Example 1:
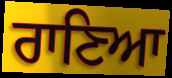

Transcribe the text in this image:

ਰਾਣਿਆ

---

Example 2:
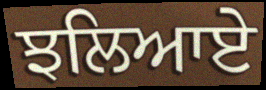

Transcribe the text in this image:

ਝਲਿਆਏ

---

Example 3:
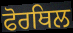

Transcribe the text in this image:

ਫੋਰਥਿਲ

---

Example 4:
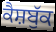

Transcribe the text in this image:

ਕੈਸ਼ਬੁੱਕ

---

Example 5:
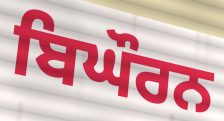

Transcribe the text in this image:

ਬਿਘੌਰਨ